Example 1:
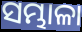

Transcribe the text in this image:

ସମ୍ଭାଳା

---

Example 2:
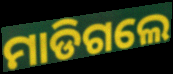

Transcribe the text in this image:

ମାଡିଗଲେ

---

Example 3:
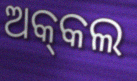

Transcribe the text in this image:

ଅକ୍‍କଲ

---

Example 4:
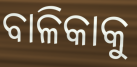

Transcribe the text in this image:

ବାଳିକାକୁ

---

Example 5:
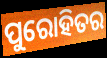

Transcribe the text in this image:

ପୁରୋହିତର